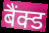
बैंक्ड